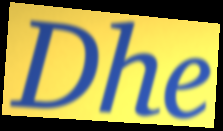
Dhe